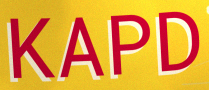
KAPD